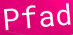
Pfad